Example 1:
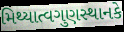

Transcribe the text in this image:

મિથ્યાત્વગુણસ્થાનકે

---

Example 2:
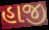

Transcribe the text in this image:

હાજી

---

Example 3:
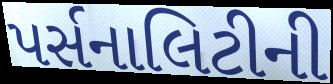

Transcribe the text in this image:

પર્સનાલિટીની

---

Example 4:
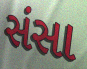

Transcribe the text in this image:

સંસા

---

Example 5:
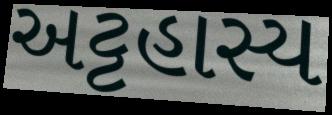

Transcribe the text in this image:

અટ્ટહાસ્ય